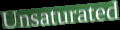
Unsaturated